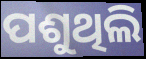
ପଶୁଥିଲି